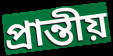
প্ৰান্তীয়